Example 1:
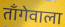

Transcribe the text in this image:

ताँगेवाला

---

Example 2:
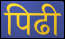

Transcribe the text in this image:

पिढी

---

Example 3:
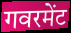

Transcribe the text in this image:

गवरमेंट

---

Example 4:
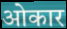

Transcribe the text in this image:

ओकार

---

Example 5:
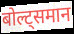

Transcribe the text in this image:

बोल्ट्समान